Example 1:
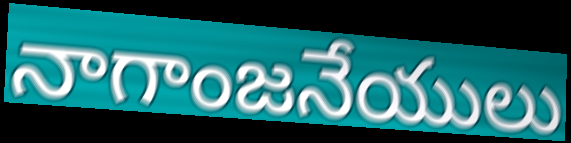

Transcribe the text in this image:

నాగాంజనేయులు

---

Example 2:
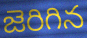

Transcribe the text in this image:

జెరిగిన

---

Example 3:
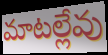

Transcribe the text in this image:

మాటల్లేవు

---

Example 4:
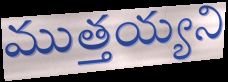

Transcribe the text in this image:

ముత్తయ్యని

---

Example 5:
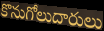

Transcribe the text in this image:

కొనుగోలుదారులు